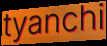
tyanchi